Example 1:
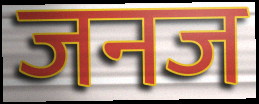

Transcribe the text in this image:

जनज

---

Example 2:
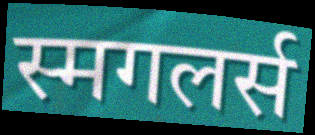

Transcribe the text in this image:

स्‍मगलर्स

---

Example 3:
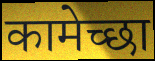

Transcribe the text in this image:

कामेच्छा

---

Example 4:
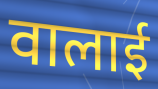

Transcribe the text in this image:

वालाई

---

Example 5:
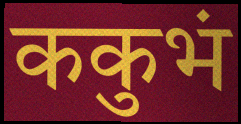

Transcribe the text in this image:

ककुभं